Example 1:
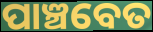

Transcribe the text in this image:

ପାଞ୍ଚବେତ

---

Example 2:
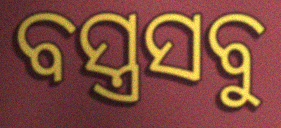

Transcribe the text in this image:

ବସ୍ତ୍ରସବୁ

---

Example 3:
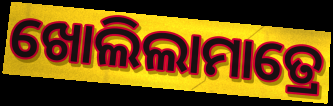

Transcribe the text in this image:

ଖୋଲିଲାମାତ୍ରେ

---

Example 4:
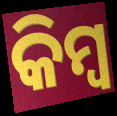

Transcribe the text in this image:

କିମ୍ବ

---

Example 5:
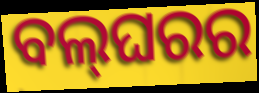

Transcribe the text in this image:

ବଲ୍‌ଘରର